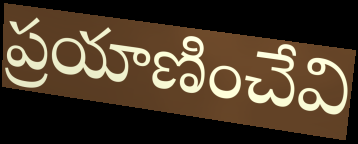
ప్రయాణించేవి